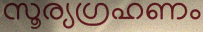
സൂര്യഗ്രഹണം